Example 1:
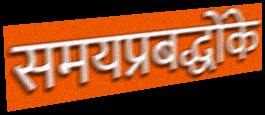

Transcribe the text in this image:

समयप्रबद्धोंके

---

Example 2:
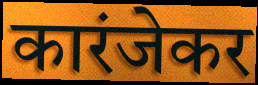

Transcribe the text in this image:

कारंजेकर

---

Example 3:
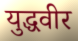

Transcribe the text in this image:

युद्धवीर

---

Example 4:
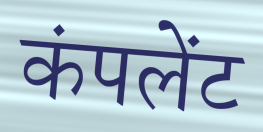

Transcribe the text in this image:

कंपलेंट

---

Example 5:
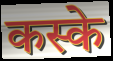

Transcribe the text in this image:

कस्के